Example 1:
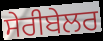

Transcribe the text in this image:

ਸੇਰੀਬੇਲਰ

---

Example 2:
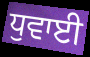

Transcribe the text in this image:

ਧੁਵਾਈ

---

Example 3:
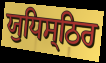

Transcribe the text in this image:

ਯੁਧਿਸ੍ਠਿਰ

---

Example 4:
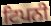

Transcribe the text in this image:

ਟਿਪਨੀ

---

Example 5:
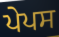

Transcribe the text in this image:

ਪੇਪਸ